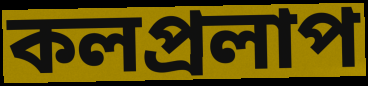
কলপ্রলাপ